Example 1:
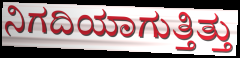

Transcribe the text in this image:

ನಿಗದಿಯಾಗುತ್ತಿತ್ತು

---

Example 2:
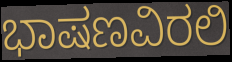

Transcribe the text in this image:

ಭಾಷಣವಿರಲಿ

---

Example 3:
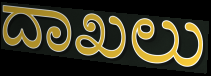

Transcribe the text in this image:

ದಾಖಲು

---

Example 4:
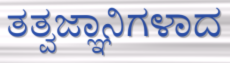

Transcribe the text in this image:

ತತ್ವಜ್ಞಾನಿಗಳಾದ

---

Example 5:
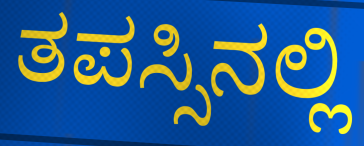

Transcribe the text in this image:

ತಪಸ್ಸಿನಲ್ಲಿ